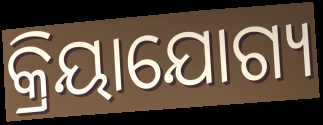
କ୍ରିୟାଯୋଗ୍ୟ